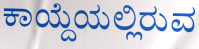
ಕಾಯ್ದೆಯಲ್ಲಿರುವ